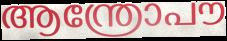
ആന്ത്രോപൗ